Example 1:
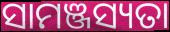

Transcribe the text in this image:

ସାମଞ୍ଜସ୍ୟତା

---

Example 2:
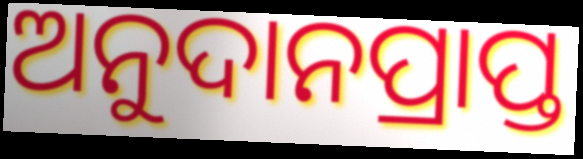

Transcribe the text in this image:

ଅନୁଦାନପ୍ରାପ୍ତ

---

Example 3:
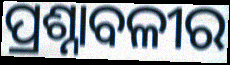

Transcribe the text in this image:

ପ୍ରଶ୍ନାବଳୀର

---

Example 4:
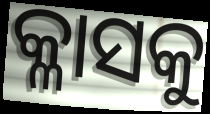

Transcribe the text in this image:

କ୍ଳାସକୁ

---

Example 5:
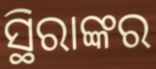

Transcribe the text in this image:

ସ୍ଥିରାଙ୍କର